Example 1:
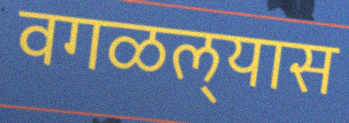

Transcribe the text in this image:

वगळल्यास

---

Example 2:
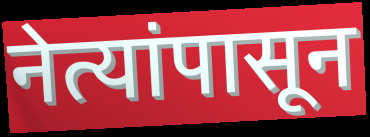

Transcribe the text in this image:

नेत्यांपासून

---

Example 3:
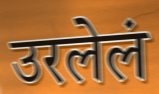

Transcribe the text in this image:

उरलेलं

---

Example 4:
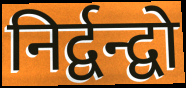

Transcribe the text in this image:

निर्द्वन्द्वो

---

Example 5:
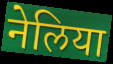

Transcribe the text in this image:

नेलिया